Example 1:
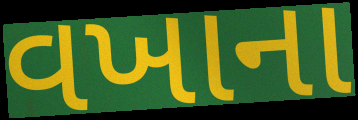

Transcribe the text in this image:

વખાના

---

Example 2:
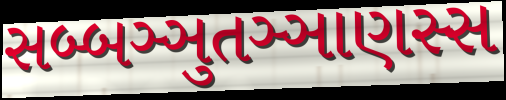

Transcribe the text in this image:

સબ્બઞ્ઞુતઞ્ઞાણસ્સ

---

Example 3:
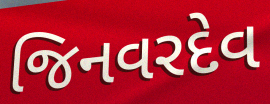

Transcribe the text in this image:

જિનવરદેવ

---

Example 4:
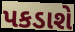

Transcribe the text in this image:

પકડાશે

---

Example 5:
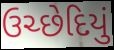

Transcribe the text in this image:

ઉચ્છેદિયું